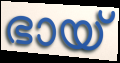
ഭായ്